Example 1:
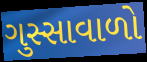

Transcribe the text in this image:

ગુસ્સાવાળો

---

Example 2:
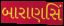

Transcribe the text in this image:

બારાણસિં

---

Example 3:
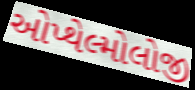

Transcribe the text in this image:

ઓપ્થેલ્મોલોજી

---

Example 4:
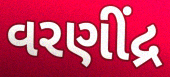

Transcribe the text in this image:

વરણીંદ્ર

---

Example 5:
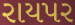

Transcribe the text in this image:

રાયપર